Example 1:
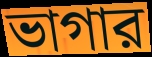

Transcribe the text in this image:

ভাগার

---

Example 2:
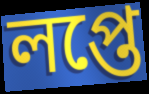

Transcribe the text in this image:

লপ্তে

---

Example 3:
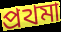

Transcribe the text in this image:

প্রথমা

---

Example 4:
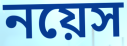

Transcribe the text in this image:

নয়েস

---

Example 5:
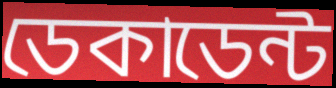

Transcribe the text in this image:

ডেকাডেন্ট